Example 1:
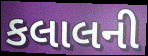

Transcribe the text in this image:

કલાલની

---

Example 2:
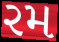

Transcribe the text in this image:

રમ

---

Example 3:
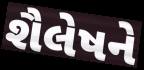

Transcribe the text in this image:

શૈલેષને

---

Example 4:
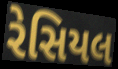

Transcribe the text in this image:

રેસિયલ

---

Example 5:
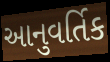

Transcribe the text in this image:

આનુવર્તિક